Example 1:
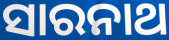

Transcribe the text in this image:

ସାରନାଥ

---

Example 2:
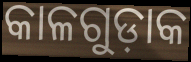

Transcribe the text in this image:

କାଳଗୁଡ଼ାକ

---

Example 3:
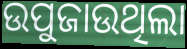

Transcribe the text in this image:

ଉପୁଜାଉଥିଲା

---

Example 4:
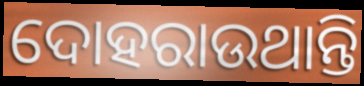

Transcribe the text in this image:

ଦୋହରାଉଥାନ୍ତି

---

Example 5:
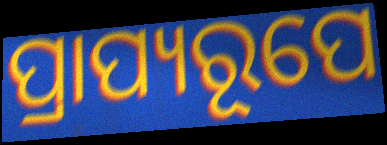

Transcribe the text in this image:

ପ୍ରାପ୍ୟରୂପେ